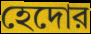
হেদোর